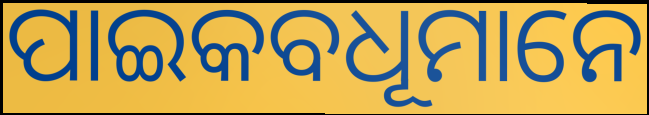
ପାଇକବଧୂମାନେ